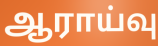
ஆராய்வு